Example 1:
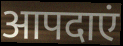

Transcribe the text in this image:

आपदाएं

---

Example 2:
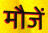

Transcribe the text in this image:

मौजें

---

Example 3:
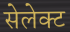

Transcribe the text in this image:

सेलेक्ट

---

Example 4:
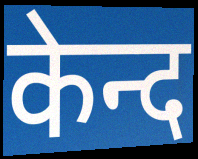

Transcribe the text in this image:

केन्द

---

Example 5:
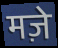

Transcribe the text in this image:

मज़े